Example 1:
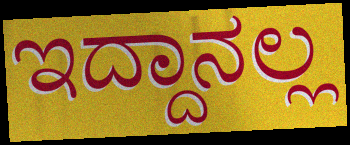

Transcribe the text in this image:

ಇದ್ದಾನಲ್ಲ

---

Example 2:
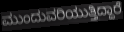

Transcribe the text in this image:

ಮುಂದುವರಿಯುತ್ತಿದ್ದಾರೆ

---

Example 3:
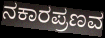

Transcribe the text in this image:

ನಕಾರಪ್ರಣವ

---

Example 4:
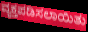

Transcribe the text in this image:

ವ್ಯಕ್ತಪಡಿಸಲಾಯಿತು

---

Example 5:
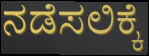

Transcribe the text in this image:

ನಡೆಸಲಿಕ್ಕೆ